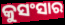
କୁସଂସାର